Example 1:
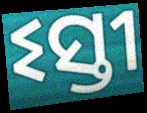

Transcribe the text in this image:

ଽସ୍ତୀ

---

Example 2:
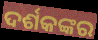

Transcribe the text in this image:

ଦର୍ଶକଙ୍କର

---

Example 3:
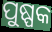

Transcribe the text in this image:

ପୁଷ୍ପକ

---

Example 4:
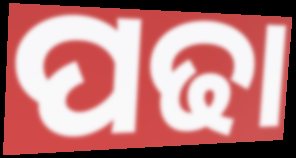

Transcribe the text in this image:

ପଢା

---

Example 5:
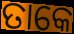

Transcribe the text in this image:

ତାକେ